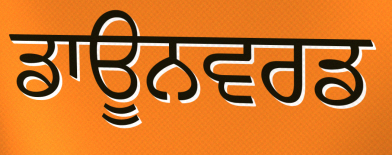
ਡਾਊਨਵਰਡ